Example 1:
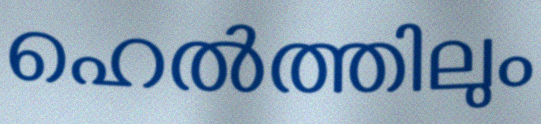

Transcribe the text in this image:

ഹെൽത്തിലും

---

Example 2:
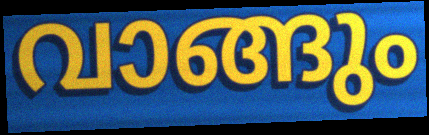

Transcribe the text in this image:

വാങ്ങും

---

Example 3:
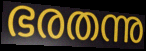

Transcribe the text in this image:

ഭരതന്നു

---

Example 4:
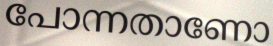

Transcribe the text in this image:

പോന്നതാണോ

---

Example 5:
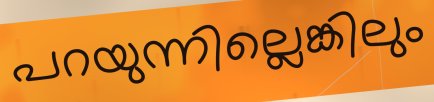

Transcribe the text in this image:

പറയുന്നില്ലെങ്കിലും